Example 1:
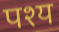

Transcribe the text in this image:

पश्य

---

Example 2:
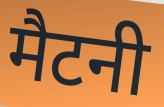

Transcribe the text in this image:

मैटनी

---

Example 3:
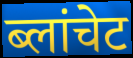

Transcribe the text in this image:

ब्लांचेट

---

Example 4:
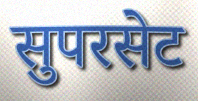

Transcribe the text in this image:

सुपरसेट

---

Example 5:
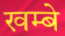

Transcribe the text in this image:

खम्बे